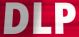
DLP